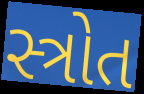
સ્ત્રોત